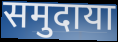
समुदाया